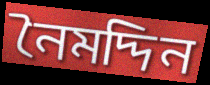
নৈমদ্দিন